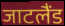
जाटलैंड